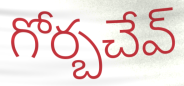
గోర్బచేవ్